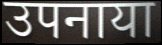
उपनाया